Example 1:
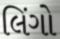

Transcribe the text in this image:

લિંગો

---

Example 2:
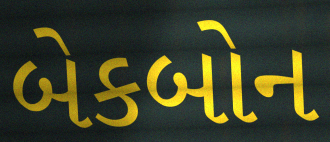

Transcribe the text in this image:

બેકબોન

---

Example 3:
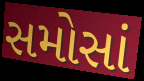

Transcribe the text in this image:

સમોસાં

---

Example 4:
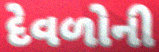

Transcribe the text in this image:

દેવળોની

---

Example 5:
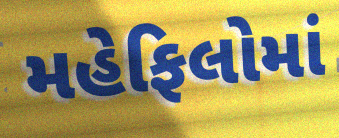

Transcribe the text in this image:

મહેફિલોમાં